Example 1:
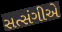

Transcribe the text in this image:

સત્સંગીએ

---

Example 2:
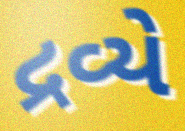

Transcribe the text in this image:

દ્રવ્યે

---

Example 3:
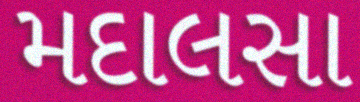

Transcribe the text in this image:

મદાલસા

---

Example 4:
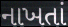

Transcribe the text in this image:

નાખતાં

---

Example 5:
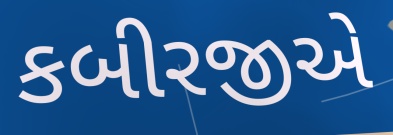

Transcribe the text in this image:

કબીરજીએ